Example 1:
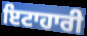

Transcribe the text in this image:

ਇਟਾਹਾਰੀ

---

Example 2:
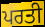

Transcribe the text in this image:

ਪਰਤੀ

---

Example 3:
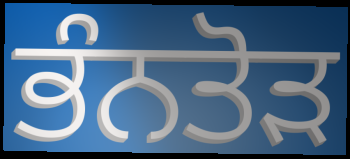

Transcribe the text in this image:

ਭੰਨਤੋੜ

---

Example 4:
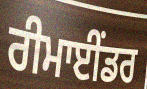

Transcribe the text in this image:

ਰੀਮਾਈਂਡਰ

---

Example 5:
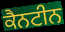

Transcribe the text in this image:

ਕੈਨਟੀਨ